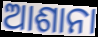
ଆଶାନା